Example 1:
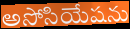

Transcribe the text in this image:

అసోసియేషను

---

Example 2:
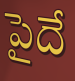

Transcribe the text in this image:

పైదే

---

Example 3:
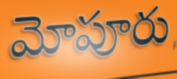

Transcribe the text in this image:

మోపూరు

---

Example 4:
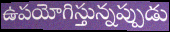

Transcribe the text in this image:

ఉపయోగిస్తున్నప్పుడు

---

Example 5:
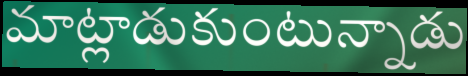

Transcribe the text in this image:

మాట్లాడుకుంటున్నాడు